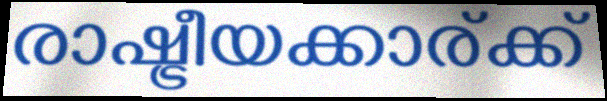
രാഷ്ട്രീയക്കാര്ക്ക്